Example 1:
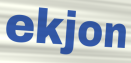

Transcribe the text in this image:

ekjon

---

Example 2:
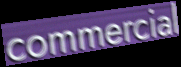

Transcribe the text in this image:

commercial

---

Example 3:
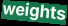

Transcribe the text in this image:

weights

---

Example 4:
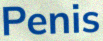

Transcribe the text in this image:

Penis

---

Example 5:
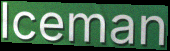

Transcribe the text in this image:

Iceman